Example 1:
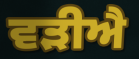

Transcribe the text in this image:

ਵੜੀਐ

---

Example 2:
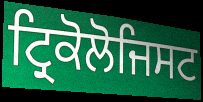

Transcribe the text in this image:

ਟ੍ਰਿਕੋਲੋਜਿਸਟ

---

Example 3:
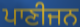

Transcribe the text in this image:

ਪਾਣੀਜਨ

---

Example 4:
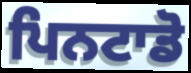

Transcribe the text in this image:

ਪਿਨਟਾਡੋ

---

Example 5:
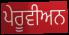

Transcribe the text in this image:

ਪੇਰੂਵੀਅਨ